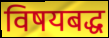
विषयबद्ध